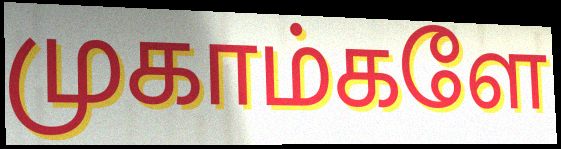
முகாம்களே